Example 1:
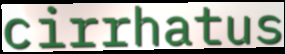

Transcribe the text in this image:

cirrhatus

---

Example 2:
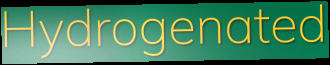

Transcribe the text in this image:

Hydrogenated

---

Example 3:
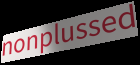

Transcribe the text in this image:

nonplussed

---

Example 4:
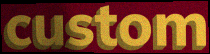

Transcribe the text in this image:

custom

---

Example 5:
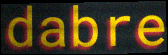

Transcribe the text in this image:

dabre